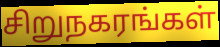
சிறுநகரங்கள்